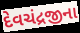
દેવચંદ્રજીના